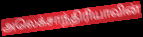
அலெக்சாந்திரியாவின்